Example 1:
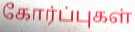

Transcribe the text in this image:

கோர்ப்புகள்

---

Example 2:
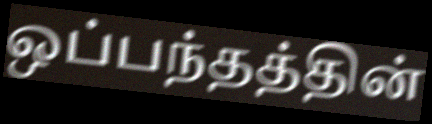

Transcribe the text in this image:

ஒப்பந்தத்தின்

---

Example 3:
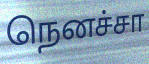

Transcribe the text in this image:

நெனச்சா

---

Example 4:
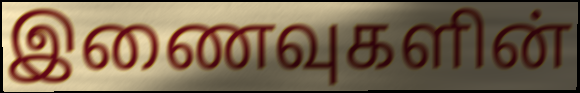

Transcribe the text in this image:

இணைவுகளின்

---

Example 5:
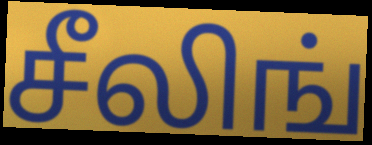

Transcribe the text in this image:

சீலிங்